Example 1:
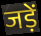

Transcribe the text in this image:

जड़ें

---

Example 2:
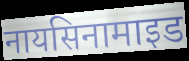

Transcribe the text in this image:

नायसिनामाइड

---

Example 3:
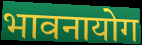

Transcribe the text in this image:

भावनायोग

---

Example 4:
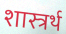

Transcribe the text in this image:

शास्त्रर्थ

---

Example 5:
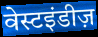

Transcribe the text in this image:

वेस्टइंडीज़